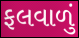
ફલવાળું